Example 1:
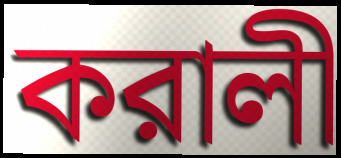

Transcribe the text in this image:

করালী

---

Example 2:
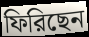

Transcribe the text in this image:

ফিরিছেন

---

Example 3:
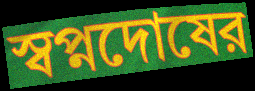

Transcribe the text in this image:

স্বপ্নদোষের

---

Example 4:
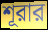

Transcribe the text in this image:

শূরার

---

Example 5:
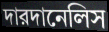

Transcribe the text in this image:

দারদানেলিস